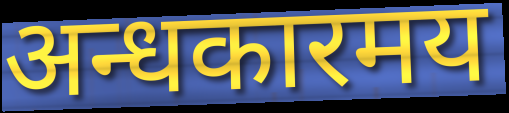
अन्धकारमय